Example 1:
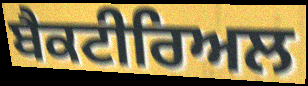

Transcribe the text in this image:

ਬੈਕਟੀਰਿਅਲ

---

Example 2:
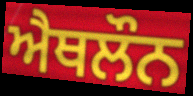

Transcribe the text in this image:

ਐਥਲੌਨ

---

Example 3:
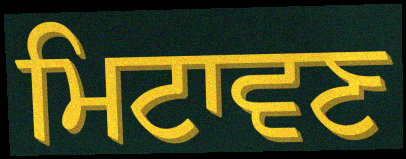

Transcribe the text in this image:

ਮਿਟਾਵਣ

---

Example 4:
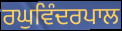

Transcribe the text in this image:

ਰਘੁਵਿੰਦਰਪਾਲ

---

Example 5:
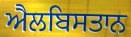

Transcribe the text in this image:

ਐਲਬਿਸਤਾਨ